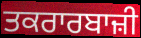
ਤਕਰਾਰਬਾਜ਼ੀ